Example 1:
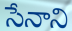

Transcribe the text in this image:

సేనాని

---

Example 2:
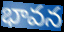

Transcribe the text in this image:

భావన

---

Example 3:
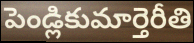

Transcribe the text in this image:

పెండ్లికుమార్తెరీతి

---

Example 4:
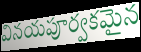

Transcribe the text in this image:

వినయపూర్వకమైన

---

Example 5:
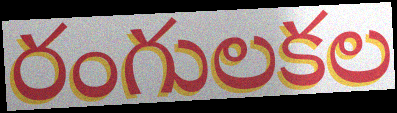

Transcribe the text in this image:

రంగులకల